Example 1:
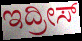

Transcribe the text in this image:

ಇದ್ರೀಸ್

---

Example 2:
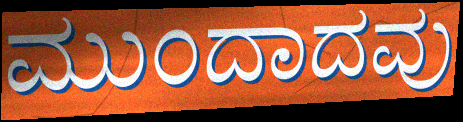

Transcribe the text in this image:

ಮುಂದಾದವು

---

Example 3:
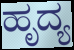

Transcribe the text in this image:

ಹೃದ್ಯ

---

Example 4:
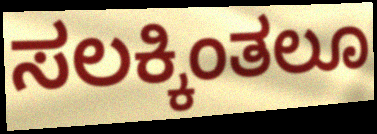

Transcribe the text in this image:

ಸಲಕ್ಕಿಂತಲೂ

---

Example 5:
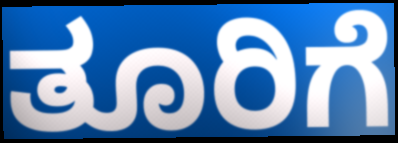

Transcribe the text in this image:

ತೂರಿಗೆ